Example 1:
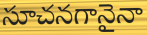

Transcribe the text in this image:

సూచనగానైనా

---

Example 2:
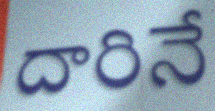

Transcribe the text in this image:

దారినే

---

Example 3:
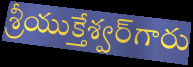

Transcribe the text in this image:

శ్రీయుక్తేశ్వర్‌గారు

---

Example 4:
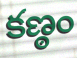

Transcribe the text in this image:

కణ్ఠం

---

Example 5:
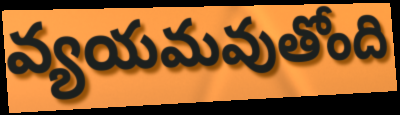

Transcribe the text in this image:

వ్యయమవుతోంది